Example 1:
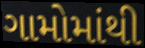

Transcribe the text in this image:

ગામોમાંથી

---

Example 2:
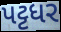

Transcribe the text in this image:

પટ્ટધર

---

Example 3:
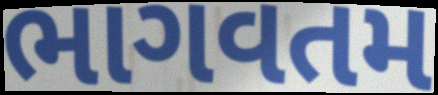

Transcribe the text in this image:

ભાગવતમ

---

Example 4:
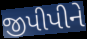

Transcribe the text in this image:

જીપીપીને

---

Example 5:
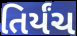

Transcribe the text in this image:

તિર્યંચ